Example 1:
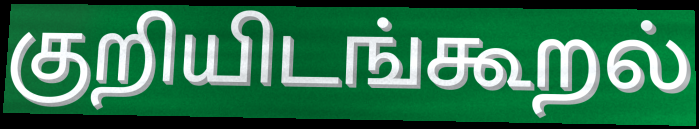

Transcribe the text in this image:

குறியிடங்கூறல்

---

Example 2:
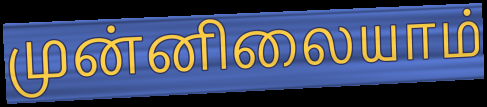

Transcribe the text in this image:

முன்னிலையாம்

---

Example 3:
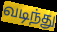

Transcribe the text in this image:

வடிந்து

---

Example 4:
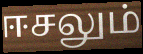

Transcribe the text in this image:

ஈசலும்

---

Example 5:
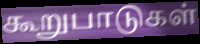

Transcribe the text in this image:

கூறுபாடுகள்